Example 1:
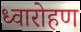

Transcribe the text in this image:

ध्वारोहण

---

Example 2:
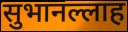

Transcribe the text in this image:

सुभानल्लाह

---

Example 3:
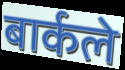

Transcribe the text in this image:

बार्कले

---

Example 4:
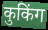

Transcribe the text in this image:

कुकिंग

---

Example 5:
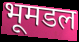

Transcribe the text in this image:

भूमडल